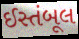
ઈસ્તંબૂલ